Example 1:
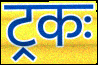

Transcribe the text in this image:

ट्रकः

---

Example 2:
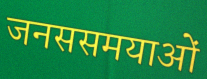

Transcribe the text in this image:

जनससमयाओं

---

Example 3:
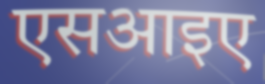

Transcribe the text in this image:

एसआइए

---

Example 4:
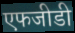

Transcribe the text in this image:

एफजीडी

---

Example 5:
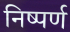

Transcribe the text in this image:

निष्पर्ण